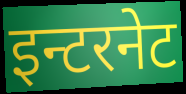
इन्टरनेट